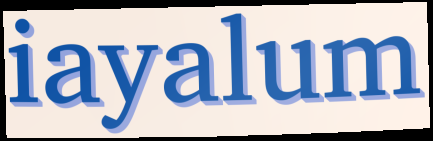
iayalum